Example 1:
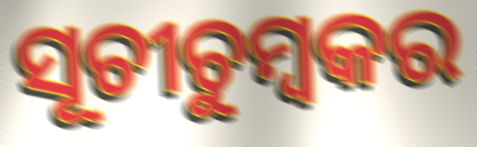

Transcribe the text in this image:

ସୂଚୀଚୁମ୍ବକର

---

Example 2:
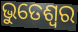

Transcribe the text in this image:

ଭୁତେଶ୍ୱର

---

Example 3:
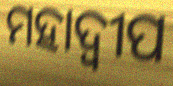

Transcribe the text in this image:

ମହାଦ୍ୱୀପ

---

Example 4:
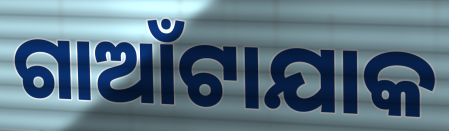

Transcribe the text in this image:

ଗାଆଁଟାଯାକ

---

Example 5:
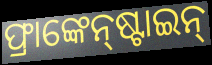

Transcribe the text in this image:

ଫ୍ରାଙ୍କେନ୍‌ଷ୍ଟାଇନ୍